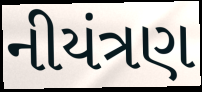
નીયંત્રણ